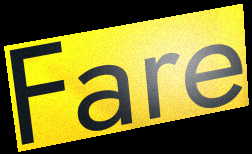
Fare